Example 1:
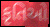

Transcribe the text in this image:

કૃતિઓ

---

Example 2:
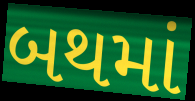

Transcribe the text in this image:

બથમાં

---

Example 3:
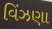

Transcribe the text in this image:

વિંઝણા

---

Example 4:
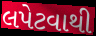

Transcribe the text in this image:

લપેટવાથી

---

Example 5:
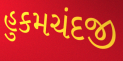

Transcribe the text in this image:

હુકમચંદજી